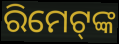
ରିମେଟ୍‍ଙ୍କ